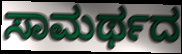
ಸಾಮರ್ಥದ